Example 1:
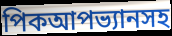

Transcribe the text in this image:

পিকআপভ্যানসহ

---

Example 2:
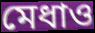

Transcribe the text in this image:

মেধাও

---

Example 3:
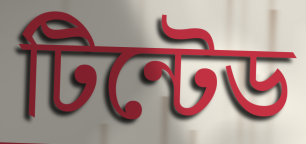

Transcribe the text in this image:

টিন্টেড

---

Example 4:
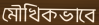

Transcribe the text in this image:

মৌখিকভাবে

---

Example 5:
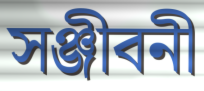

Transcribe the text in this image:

সঞ্জীবনী